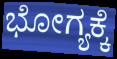
ಭೋಗ್ಯಕ್ಕೆ